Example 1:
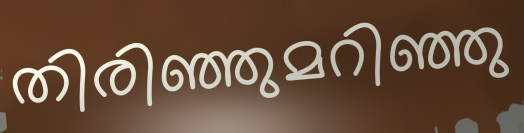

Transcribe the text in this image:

തിരിഞ്ഞുമറിഞ്ഞു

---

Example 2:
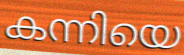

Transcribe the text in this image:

കന്നിയെ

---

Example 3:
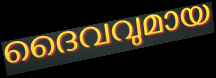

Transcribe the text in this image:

ദൈവവുമായ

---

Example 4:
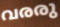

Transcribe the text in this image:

വരരു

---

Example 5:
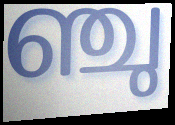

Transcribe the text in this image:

ഞ്ചു